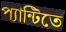
প্যান্টিতে